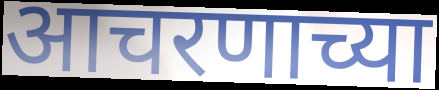
आचरणाच्या